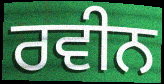
ਰਵੀਨ